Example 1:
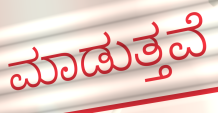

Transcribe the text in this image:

ಮಾಡುತ್ತವೆ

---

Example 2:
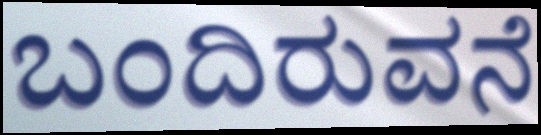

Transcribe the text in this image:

ಬಂದಿರುವನೆ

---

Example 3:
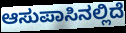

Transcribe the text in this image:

ಆಸುಪಾಸಿನಲ್ಲಿದೆ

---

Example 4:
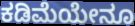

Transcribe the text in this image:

ಕಡಿಮೆಯೇನೂ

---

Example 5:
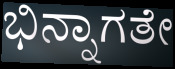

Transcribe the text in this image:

ಭಿನ್ನಾಗತೇ